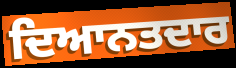
ਦਿਆਨਤਦਾਰ